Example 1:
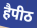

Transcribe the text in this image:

हैपीठ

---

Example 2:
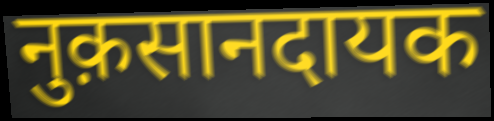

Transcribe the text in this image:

नुक़सानदायक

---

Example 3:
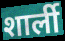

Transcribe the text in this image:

शार्ली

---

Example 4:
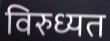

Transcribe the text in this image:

विरुध्यत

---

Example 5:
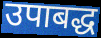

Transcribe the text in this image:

उपाबद्ध